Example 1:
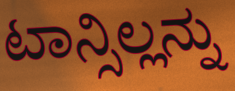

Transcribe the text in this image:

ಟಾನ್ಸಿಲ್ಲನ್ನು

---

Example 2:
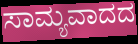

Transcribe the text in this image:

ಸಾಮ್ಯವಾದದ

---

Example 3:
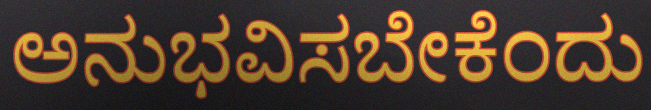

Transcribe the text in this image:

ಅನುಭವಿಸಬೇಕೆಂದು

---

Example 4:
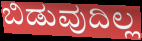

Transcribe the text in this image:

ಬಿಡುವುದಿಲ್ಲ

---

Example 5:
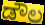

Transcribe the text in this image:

ಡೌಲ